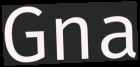
Gna